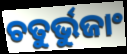
ଚତୁର୍ଭୁଜାଂ